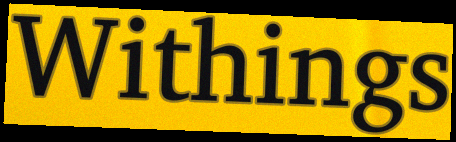
Withings